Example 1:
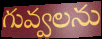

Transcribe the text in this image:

గువ్వలను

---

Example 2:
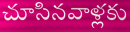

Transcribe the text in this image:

చూసినవాళ్లకు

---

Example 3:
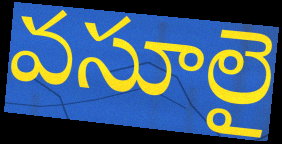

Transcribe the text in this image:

వసూలై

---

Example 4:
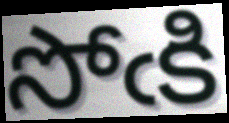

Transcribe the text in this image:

సోఁకి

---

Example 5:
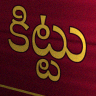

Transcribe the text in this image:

కిట్టు